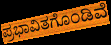
ಪ್ರಭಾವಿತಗೊಂಡಿವೆ